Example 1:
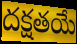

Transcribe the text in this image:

దక్షతయే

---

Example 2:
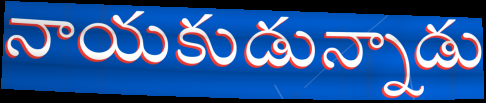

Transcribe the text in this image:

నాయకుడున్నాడు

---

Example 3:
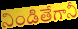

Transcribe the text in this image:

నిండితేగానీ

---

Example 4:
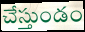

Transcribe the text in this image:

చేస్తుండం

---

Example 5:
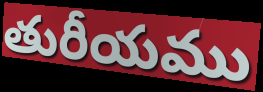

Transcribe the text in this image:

తురీయము